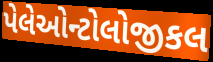
પેલેઓન્ટોલોજીકલ